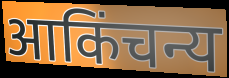
आकिंचन्य